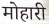
मोहारी